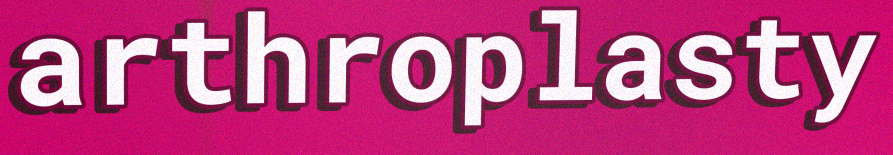
arthroplasty